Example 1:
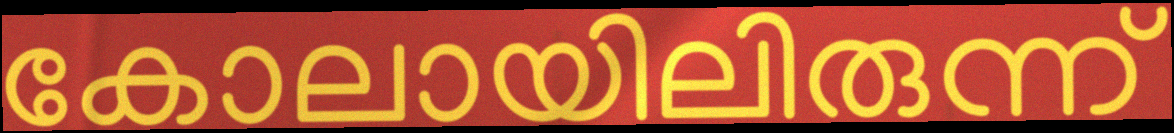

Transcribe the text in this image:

കോലായിലിരുന്ന്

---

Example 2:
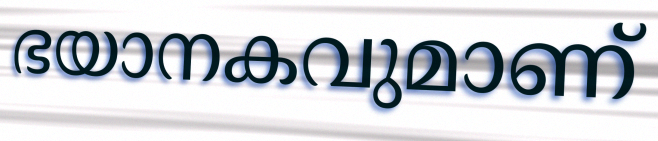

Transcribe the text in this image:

ഭയാനകവുമാണ്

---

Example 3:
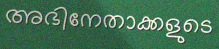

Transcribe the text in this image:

അഭിനേതാക്കളുടെ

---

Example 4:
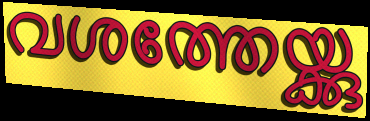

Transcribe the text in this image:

വശത്തേയ്ക്കു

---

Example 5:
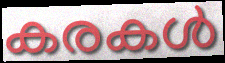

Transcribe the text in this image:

കരകൾ